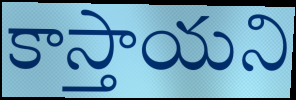
కాస్తాయని